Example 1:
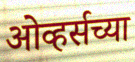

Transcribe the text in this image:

ओव्हर्सच्या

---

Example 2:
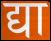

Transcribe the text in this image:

द्या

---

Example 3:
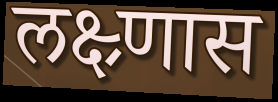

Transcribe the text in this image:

लक्ष्र्णास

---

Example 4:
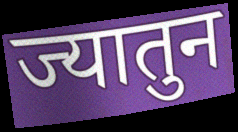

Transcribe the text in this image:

ज्यातुन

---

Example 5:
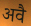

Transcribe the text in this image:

अवै